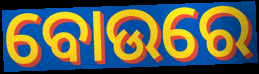
ବୋଉରେ